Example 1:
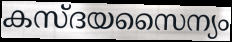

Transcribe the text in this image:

കസ്ദയസൈന്യം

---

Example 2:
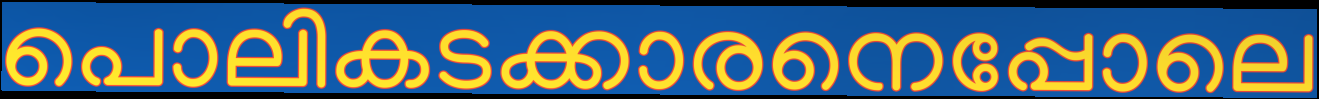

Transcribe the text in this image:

പൊലികടക്കാരനെപ്പോലെ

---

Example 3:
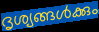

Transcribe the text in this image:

ദൃശ്യങ്ങൾക്കും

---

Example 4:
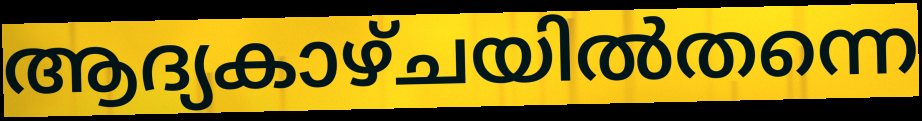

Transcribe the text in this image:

ആദ്യകാഴ്ചയിൽതന്നെ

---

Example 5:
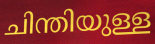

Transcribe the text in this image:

ചിന്തിയുള്ള